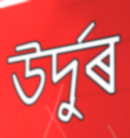
উৰ্দুৰ